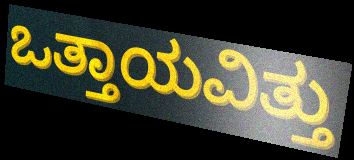
ಒತ್ತಾಯವಿತ್ತು